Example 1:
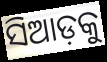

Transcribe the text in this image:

ସିଆଡ଼କୁ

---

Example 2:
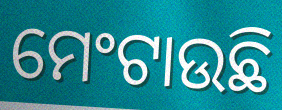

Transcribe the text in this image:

ମେଂଟାଉଛି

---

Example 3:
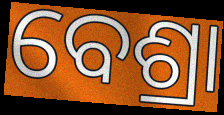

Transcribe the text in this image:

ବେଶ୍ରା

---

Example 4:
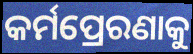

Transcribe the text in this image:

କର୍ମପ୍ରେରଣାକୁ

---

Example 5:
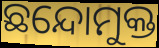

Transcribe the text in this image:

ଛନ୍ଦୋମୁକ୍ତ